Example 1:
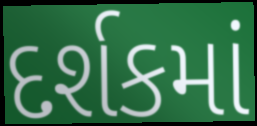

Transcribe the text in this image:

દર્શકમાં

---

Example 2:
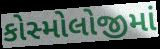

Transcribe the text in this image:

કોસ્મોલોજીમાં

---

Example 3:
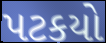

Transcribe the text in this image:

પટકયો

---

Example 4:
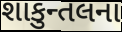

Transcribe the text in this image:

શાકુન્તલના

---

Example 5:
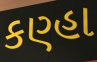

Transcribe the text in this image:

કણ્હા